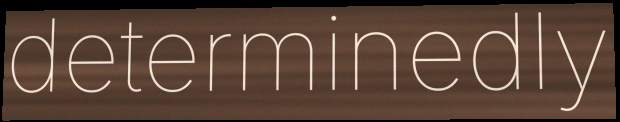
determinedly